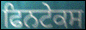
ਫਿਨਟੇਕਸ